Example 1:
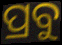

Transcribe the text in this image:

ପ୍ରବୁ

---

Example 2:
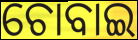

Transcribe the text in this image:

ଚୋବାଇ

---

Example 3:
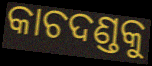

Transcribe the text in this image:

କାଚଦଣ୍ଡକୁ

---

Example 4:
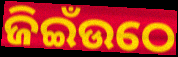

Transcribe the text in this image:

ଜିଇଁଉଠେ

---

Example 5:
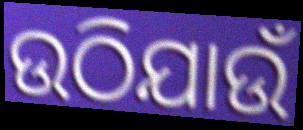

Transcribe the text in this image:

ଉଠିଯାଉଁ